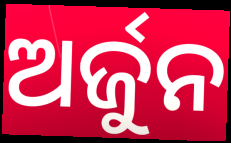
ଅର୍ଜୁନ